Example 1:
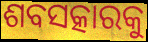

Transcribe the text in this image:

ଶବସତ୍କାରକୁ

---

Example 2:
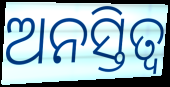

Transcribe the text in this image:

ଅନସ୍ତିତ୍ୱ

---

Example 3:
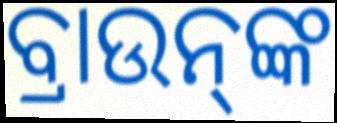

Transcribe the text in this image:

ବ୍ରାଉନ୍‌ଙ୍କ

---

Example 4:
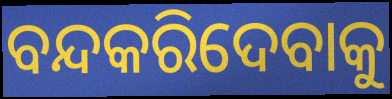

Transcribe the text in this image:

ବନ୍ଦକରିଦେବାକୁ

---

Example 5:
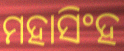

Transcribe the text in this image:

ମହାସିଂହ